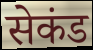
सेकंड